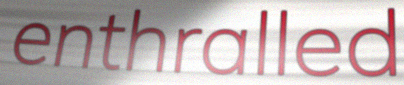
enthralled